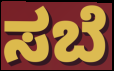
ಸಬೆ